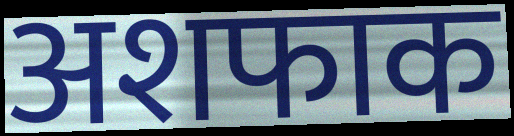
अशफाक